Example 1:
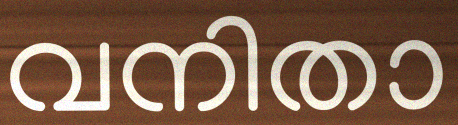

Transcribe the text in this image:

വനിതാ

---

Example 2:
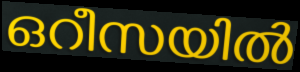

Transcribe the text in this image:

ഒറീസയിൽ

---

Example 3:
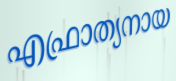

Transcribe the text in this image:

എഫ്രാത്യനായ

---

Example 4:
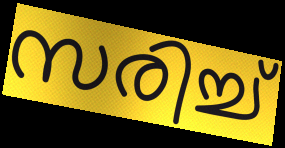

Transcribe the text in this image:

സരിച്ച്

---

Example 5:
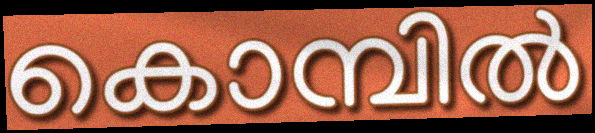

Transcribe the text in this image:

കൊമ്പിൽ